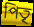
পিতৃ